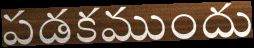
పడకముందు